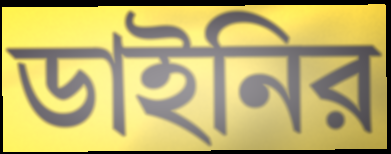
ডাইনির